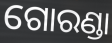
ଗୋରଣ୍ଡା